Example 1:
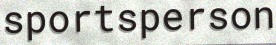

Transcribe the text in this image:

sportsperson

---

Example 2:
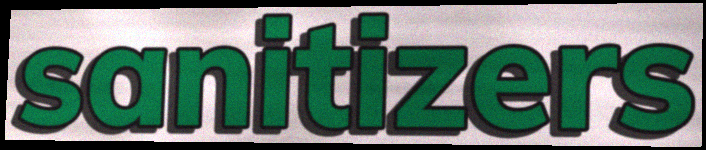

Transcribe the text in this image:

sanitizers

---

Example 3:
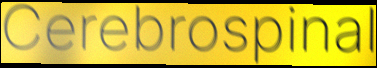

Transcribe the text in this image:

Cerebrospinal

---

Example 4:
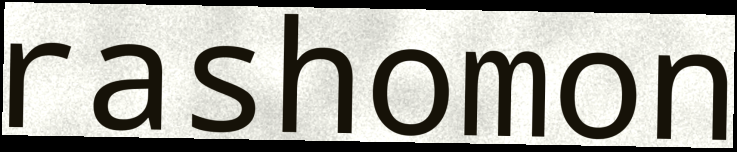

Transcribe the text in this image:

rashomon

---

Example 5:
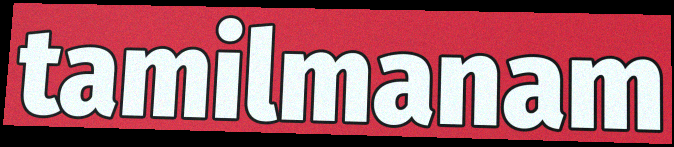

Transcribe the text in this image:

tamilmanam